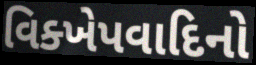
વિક્ખેપવાદિનો